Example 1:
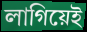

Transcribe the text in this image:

লাগিয়েই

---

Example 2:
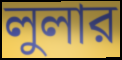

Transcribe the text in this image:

লুলার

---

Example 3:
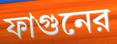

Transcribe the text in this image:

ফাগুনের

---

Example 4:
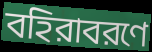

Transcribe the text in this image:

বহিরাবরণে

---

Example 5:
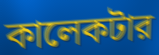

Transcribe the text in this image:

কালেকটার